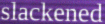
slackened